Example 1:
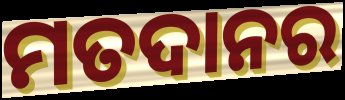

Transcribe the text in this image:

ମତଦାନର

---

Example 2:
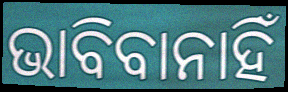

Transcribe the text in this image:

ଭାବିବାନାହିଁ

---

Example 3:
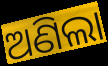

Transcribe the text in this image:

ଅଣିଲା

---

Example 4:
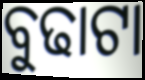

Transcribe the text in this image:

ବୁଢାଟା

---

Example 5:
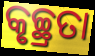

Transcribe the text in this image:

କୃଚ୍ଛ୍ରତା